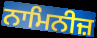
ਨਾਮਿਨੀਜ਼